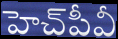
హెచ్‌పీవీ